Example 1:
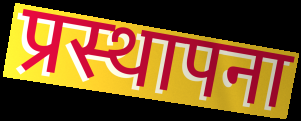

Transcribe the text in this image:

प्रस्थापना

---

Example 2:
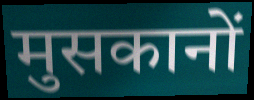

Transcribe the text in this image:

मुसकानों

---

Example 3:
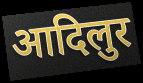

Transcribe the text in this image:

आदिलुर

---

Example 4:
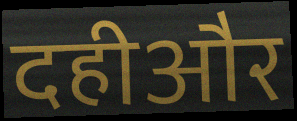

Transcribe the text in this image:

दहीऔर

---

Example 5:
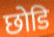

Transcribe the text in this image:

छोडि